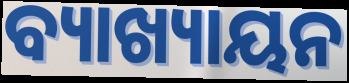
ବ୍ୟାଖ୍ୟାୟନ